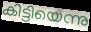
കിട്ടിയെന്നു